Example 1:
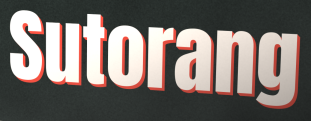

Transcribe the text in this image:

Sutorang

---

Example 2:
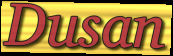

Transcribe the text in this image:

Dusan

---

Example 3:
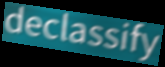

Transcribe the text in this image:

declassify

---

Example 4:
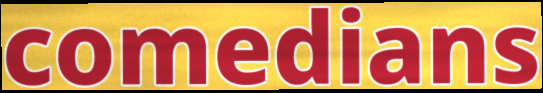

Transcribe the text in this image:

comedians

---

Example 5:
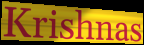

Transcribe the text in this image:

Krishnas